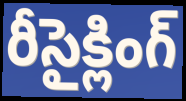
రీసైక్లింగ్